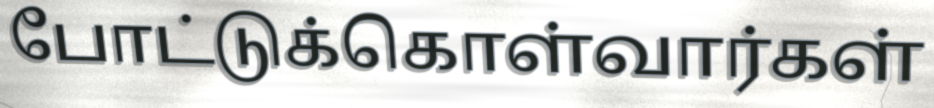
போட்டுக்கொள்வார்கள்